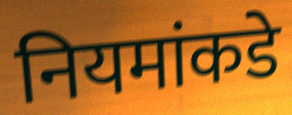
नियमांकडे